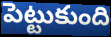
పెట్టుకుంది